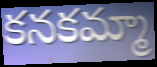
కనకమ్మా